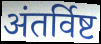
अंतर्विष्ट